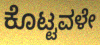
ಕೊಟ್ಟವಳೇ